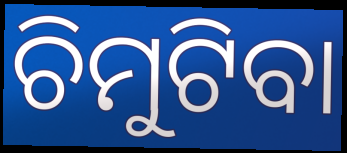
ଚିମୁଟିବା